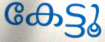
കേട്ടൂ